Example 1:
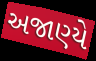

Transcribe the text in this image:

અજાણ્યે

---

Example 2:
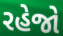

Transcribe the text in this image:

રહેજો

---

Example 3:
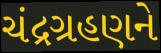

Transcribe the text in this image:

ચંદ્રગ્રહણને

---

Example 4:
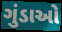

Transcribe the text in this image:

ગુંડાઓ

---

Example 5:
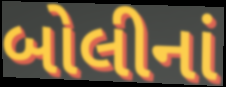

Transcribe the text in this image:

બોલીનાં